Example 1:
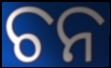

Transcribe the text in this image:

ଚନ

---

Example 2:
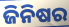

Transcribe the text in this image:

ଜିନିଷର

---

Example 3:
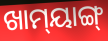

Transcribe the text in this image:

ଖାମ୍‌ୟାଙ୍ଗ୍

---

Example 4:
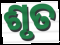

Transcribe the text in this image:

ଶୃତ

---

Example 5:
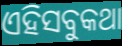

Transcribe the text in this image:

ଏହିସବୁକଥା